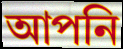
আপনি